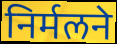
निर्मलने